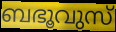
ബഭൂവുസ്